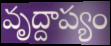
వృద్దాప్యం